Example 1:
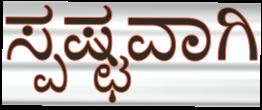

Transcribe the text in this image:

ಸ್ಪಷ್ಟವಾಗಿ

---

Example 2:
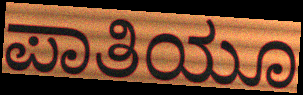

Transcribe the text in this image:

ಪಾತಿಯೂ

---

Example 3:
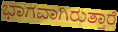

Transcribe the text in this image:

ಭಾಗವಾಗಿರುತ್ತಾರೆ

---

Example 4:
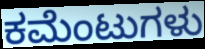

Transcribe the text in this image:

ಕಮೆಂಟುಗಳು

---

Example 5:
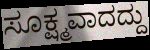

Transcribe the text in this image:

ಸೂಕ್ಷ್ಮವಾದದ್ದು